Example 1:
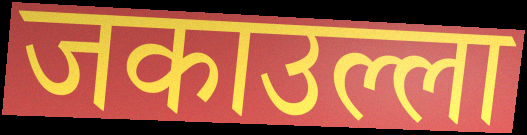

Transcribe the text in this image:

जकाउल्ला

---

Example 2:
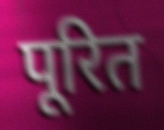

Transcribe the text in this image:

पूरित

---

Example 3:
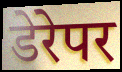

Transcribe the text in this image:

डेरेपर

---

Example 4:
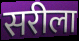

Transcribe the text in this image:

सरीला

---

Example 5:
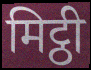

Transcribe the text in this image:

मिट्ठी